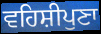
ਵਹਿਸ਼ੀਪੁਣਾ